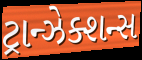
ટ્રાન્ઝેક્શન્સ